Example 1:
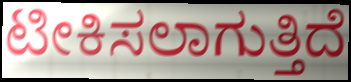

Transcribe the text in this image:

ಟೀಕಿಸಲಾಗುತ್ತಿದೆ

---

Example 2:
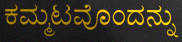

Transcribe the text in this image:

ಕಮ್ಮಟವೊಂದನ್ನು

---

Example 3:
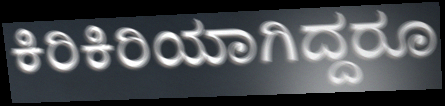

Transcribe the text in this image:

ಕಿರಿಕಿರಿಯಾಗಿದ್ದರೂ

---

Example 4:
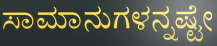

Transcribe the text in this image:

ಸಾಮಾನುಗಳನ್ನಷ್ಟೇ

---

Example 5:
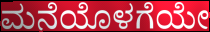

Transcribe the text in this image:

ಮನೆಯೊಳಗೆಯೇ